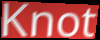
Knot